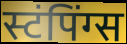
स्टंपिंग्स